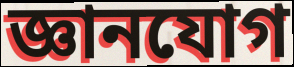
জ্ঞানযোগ